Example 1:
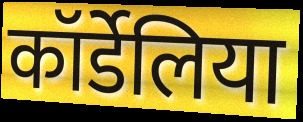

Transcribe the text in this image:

कॉर्डेलिया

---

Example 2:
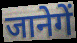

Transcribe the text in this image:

जानेगें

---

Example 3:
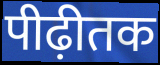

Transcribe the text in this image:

पीढ़ीतक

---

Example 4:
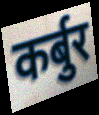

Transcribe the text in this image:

कर्बुर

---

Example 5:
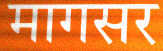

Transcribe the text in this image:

मागसर